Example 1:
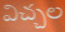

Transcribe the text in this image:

విచ్చల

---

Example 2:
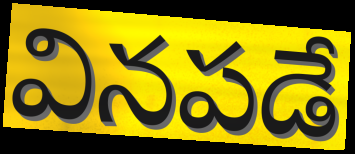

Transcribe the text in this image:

వినపడే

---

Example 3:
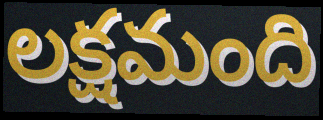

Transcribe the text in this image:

లక్షమంది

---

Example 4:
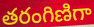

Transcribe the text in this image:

తరంగిణిగా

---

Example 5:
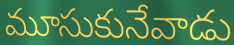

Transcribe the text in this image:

మూసుకునేవాడు